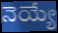
నెయ్యే